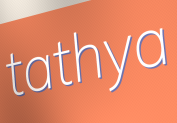
tathya